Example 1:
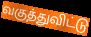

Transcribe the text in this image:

வகுத்துவிட்டு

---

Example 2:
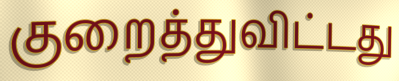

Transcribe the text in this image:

குறைத்துவிட்டது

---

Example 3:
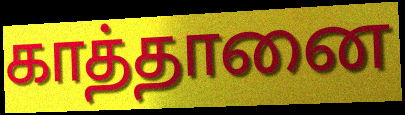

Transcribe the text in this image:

காத்தானை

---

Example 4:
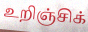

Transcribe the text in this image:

உறிஞ்சிக்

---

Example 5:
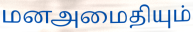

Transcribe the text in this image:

மனஅமைதியும்